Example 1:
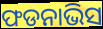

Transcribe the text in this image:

ଫଡନାଭିସ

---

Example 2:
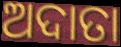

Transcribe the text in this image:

ଅଦାତା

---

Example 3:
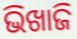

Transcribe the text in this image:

ଭିଖାଜି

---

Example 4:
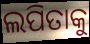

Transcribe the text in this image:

ଲପିତାକୁ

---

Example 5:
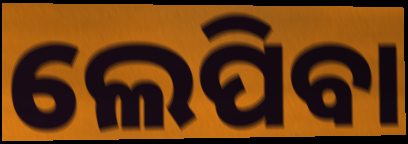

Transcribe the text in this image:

ଲେପିବା